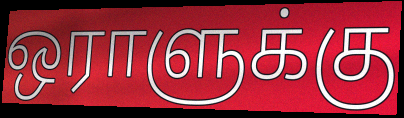
ஒராளுக்கு